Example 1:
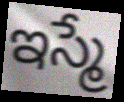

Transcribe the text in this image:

ఇస్మే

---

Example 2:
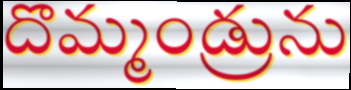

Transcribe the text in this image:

దొమ్మండ్రును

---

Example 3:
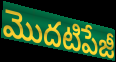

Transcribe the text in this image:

మొదటిపేజీ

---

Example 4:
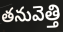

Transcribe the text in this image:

తనువెత్తి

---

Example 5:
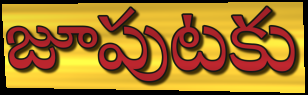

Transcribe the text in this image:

జూపుటకు